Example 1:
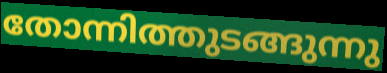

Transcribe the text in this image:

തോന്നിത്തുടങ്ങുന്നു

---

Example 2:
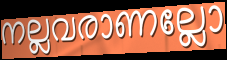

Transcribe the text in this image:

നല്ലവരാണല്ലോ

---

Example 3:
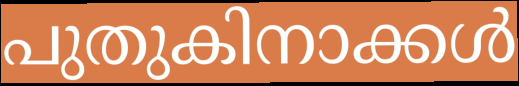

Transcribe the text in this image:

പുതുകിനാക്കൾ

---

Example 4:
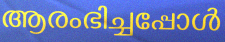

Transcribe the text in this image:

ആരംഭിച്ചപ്പോൾ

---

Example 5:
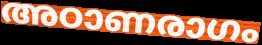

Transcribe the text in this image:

അഠാണരാഗം